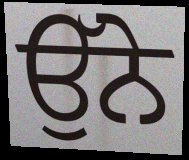
ਉੱਨੇ